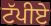
ਟੱਪੀਏ